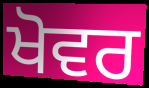
ਖੋਵਰ